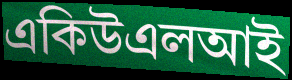
একিউএলআই